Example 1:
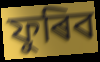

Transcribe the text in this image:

ফুৰিব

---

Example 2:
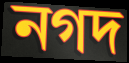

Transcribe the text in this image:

নগদ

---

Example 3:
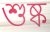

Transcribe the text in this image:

শুষ্ক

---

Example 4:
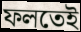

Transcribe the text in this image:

ফলতেই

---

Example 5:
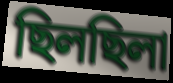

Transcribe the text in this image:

ছিলছিলা